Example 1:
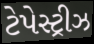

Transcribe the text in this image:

ટેપેસ્ટ્રીઝ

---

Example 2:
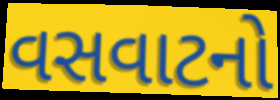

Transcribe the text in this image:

વસવાટનો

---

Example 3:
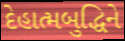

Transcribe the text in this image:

દેહાત્મબુદ્ધિને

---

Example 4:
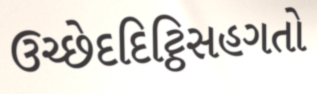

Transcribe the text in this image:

ઉચ્છેદદિટ્ઠિસહગતો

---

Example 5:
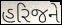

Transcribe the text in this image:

હરિજને